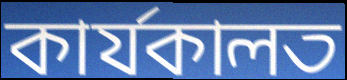
কাৰ্যকালত